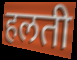
हलती